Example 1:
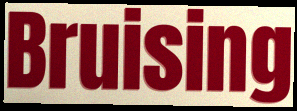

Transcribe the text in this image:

Bruising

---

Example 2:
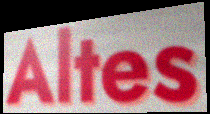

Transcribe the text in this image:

Altes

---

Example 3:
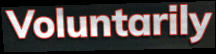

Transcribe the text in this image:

Voluntarily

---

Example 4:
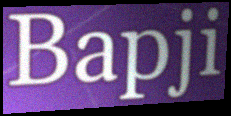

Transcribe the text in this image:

Bapji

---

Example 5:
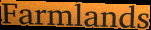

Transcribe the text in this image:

Farmlands